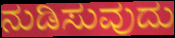
ನುಡಿಸುವುದು